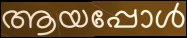
ആയപ്പോൾ